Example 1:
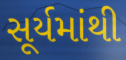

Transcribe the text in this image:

સૂર્યમાંથી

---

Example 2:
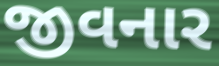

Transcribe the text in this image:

જીવનાર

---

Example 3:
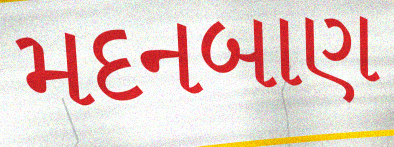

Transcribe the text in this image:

મદનબાણ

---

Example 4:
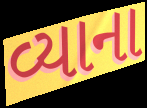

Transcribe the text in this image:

વ્યાના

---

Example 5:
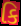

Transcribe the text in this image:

કિ